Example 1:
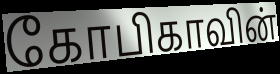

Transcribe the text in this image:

கோபிகாவின்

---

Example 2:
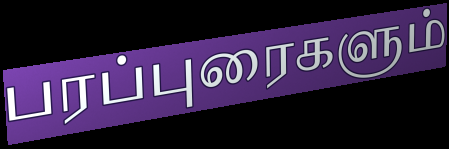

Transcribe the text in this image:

பரப்புரைகளும்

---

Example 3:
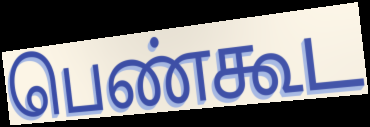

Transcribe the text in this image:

பெண்கூட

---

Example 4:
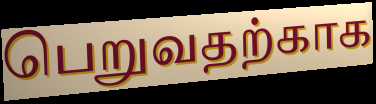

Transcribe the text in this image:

பெறுவதற்காக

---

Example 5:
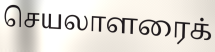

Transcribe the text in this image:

செயலாளரைக்